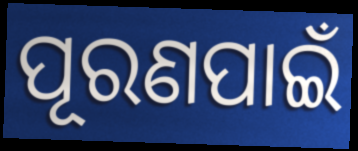
ପୂରଣପାଇଁ